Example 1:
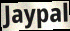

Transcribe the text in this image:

Jaypal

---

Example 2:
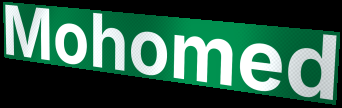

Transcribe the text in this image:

Mohomed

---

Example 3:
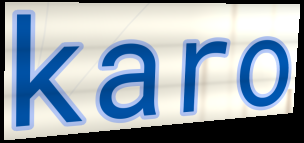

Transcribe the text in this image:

karo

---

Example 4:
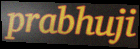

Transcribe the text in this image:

prabhuji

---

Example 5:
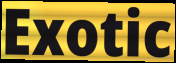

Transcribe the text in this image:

Exotic